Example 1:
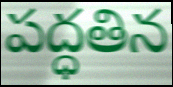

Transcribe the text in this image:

పద్ధతిన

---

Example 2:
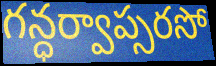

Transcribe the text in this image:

గన్ధర్వాప్సరసో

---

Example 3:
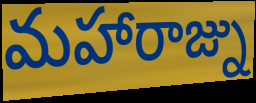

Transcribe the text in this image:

మహారాజ్ను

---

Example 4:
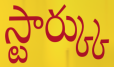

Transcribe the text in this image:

స్టార్క్కు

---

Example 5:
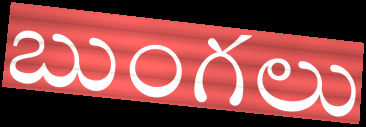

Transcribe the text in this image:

బుంగలు